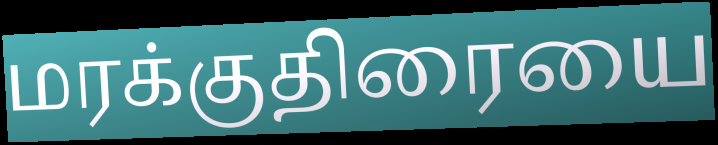
மரக்குதிரையை